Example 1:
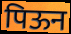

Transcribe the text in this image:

पिऊन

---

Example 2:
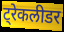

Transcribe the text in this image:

ट्रेकलीडर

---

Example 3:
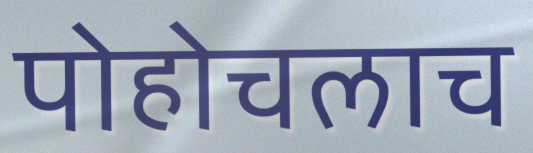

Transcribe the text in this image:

पोहोचलाच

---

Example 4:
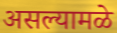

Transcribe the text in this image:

असल्यामळे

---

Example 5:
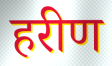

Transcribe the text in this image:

हरीण